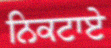
ਨਿਕਟਾਏ